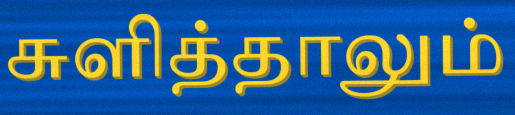
சுளித்தாலும்